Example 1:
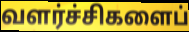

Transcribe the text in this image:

வளர்ச்சிகளைப்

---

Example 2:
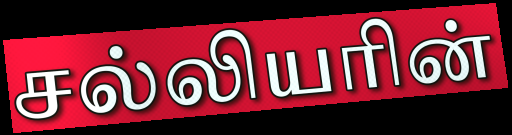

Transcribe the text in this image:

சல்லியரின்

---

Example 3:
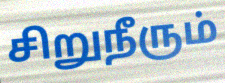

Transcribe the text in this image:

சிறுநீரும்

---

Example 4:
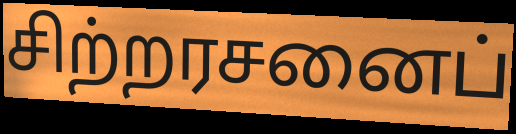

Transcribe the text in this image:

சிற்றரசனைப்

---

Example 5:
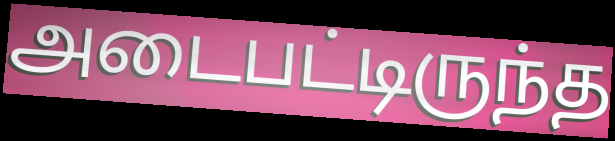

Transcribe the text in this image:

அடைபட்டிருந்த